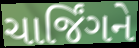
ચાર્જિંગને